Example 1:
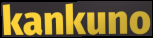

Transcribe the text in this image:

kankuno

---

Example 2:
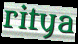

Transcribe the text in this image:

ritya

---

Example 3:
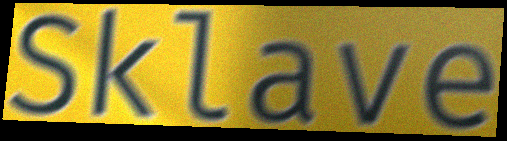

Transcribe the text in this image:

Sklave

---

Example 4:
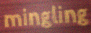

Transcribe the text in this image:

mingling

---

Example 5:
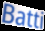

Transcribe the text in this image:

Batti